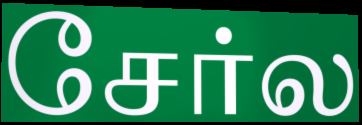
சேர்ல